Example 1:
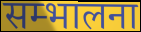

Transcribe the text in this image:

सम्भालना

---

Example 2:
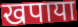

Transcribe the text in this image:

खपाया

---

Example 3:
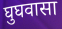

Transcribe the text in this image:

घुघवासा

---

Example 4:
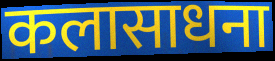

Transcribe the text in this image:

कलासाधना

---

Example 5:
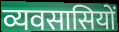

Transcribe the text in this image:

व्यवसासियों